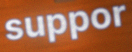
suppor